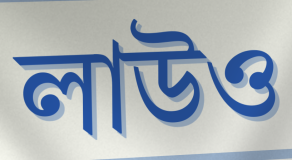
লাউও